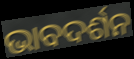
ଭାବଦର୍ଶନ